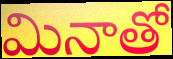
మినాతో